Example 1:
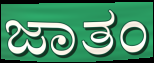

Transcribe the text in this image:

ಜಾತಂ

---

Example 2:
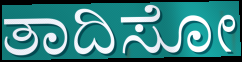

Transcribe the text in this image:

ತಾದಿಸೋ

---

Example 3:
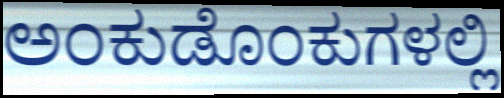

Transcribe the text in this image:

ಅಂಕುಡೊಂಕುಗಳಲ್ಲಿ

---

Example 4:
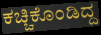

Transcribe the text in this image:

ಕಚ್ಚಿಕೊಂಡಿದ್ದ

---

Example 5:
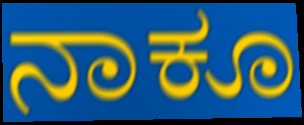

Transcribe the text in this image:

ನಾಕೂ